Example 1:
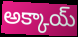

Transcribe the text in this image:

అక్కాయ్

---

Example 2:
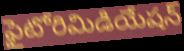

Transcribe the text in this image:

ఫైటోరిమిడియేషన్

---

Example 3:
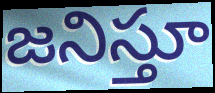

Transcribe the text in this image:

జనిస్తూ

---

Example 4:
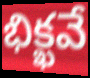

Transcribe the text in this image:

భిక్ఖవే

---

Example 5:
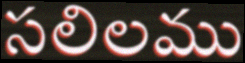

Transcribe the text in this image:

సలిలము